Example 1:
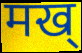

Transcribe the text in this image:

मख्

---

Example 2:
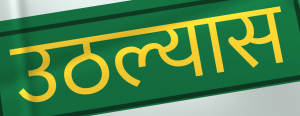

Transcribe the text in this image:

उठल्यास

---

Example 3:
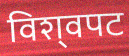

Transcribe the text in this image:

विश्वपट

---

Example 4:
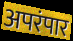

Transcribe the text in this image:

अपरंपार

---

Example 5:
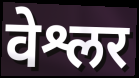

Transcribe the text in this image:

वेश्लर